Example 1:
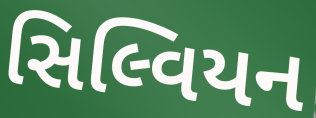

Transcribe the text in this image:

સિલ્વિયન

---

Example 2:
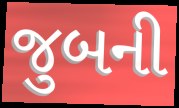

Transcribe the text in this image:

જુબની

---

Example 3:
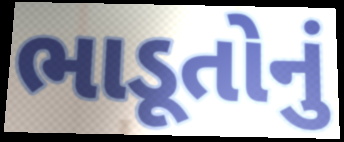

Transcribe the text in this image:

ભાડૂતોનું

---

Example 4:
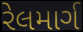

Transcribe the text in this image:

રેલમાર્ગ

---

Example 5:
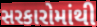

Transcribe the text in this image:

સરકારોમાંથી